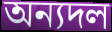
অন্যদল